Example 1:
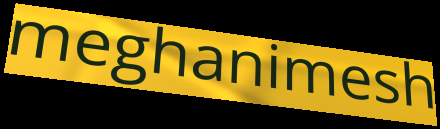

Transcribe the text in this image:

meghanimesh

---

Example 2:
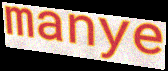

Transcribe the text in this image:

manye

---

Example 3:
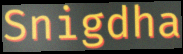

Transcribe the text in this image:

Snigdha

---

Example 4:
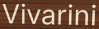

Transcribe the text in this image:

Vivarini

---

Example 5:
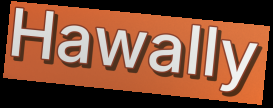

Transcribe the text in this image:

Hawally